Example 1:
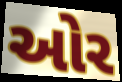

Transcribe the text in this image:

ઓર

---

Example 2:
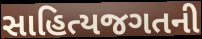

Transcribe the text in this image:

સાહિત્યજગતની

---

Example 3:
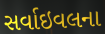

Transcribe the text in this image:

સર્વાઇવલના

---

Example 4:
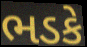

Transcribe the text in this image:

ભડકે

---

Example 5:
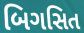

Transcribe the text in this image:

બિગસિત